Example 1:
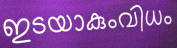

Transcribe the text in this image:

ഇടയാകുംവിധം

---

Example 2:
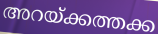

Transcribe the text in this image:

അറയ്ക്കത്തക്ക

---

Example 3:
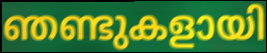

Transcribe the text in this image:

ഞണ്ടുകളായി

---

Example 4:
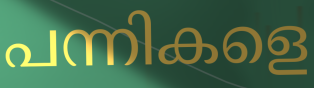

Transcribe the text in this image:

പന്നികളെ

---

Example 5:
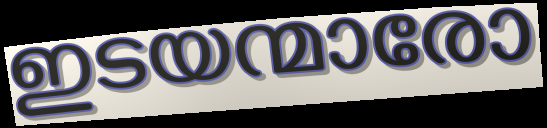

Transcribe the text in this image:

ഇടയന്മാരോ